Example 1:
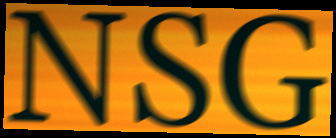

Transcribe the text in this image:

NSG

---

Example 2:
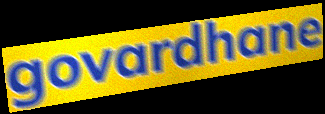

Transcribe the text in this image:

govardhane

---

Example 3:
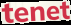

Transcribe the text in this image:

tenet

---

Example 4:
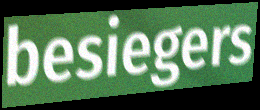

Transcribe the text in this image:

besiegers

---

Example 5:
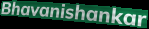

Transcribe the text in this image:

Bhavanishankar